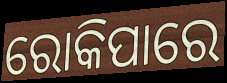
ରୋକିପାରେ